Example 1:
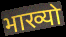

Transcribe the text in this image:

भाख्यो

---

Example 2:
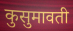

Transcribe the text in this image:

कुसुमावती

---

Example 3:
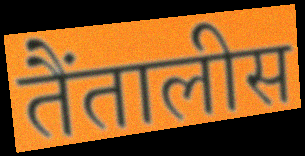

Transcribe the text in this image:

तैंतालीस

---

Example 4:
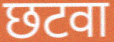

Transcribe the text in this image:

छटवा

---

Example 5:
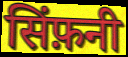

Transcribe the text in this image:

सिंफ़नी